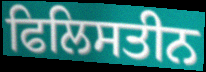
ਫਿਲਿਸਤੀਨ